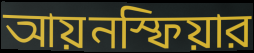
আয়নস্ফিয়ার